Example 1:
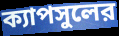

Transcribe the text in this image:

ক্যাপসুলের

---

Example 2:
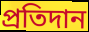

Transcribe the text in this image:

প্রতিদান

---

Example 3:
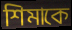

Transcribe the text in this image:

শিমাকে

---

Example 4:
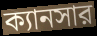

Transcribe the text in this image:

ক্যানসার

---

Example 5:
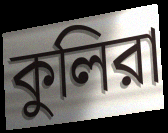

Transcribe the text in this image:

কুলিরা